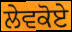
ਲੇਵਕੋਏ